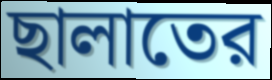
ছালাতের